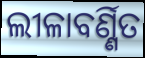
ଲୀଳାବର୍ଣ୍ଣିତ